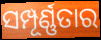
ସମ୍ପୂର୍ଣ୍ଣତାର